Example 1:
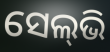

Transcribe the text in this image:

ସେଲ୍‌ଭି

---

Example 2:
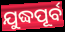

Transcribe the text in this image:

ଯୁଦ୍ଧପୂର୍ବ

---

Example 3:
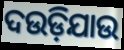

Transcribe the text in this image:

ଦଉଡ଼ିଯାଉ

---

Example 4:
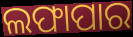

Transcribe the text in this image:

ଲଫାପାର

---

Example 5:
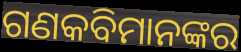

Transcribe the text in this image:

ଗଣକବିମାନଙ୍କର